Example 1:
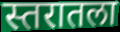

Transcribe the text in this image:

स्तरातला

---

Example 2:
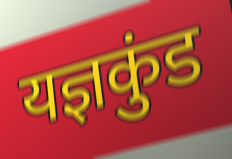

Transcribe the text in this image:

यज्ञकुंड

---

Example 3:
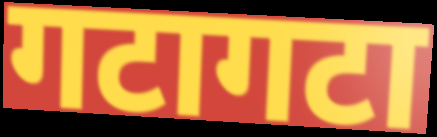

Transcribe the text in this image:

गटागटा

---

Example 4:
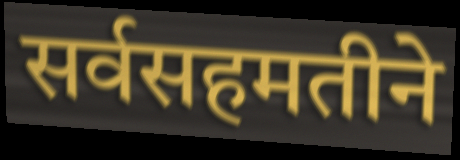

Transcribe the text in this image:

सर्वसहमतीने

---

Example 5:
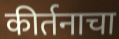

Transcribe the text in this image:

कीर्तनाचा